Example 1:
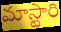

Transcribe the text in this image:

మాస్టారి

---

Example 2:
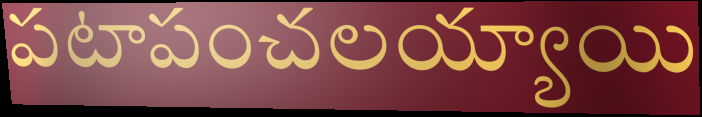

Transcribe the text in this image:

పటాపంచలయ్యాయి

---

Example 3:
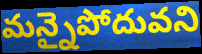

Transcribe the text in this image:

మన్నైపోదువని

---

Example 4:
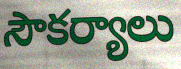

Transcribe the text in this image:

సౌకర్యాలు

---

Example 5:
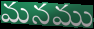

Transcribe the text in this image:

మనము